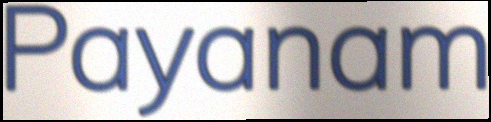
Payanam